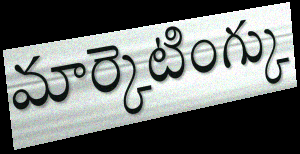
మార్కెటింగ్కు